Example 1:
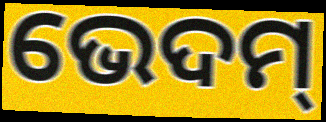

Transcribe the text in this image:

ଭେଦମ୍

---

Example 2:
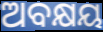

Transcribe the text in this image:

ଅବକ୍ଷୟ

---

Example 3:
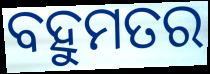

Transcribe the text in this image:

ବହୁମତର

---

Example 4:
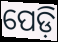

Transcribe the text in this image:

ପେଡ଼ି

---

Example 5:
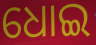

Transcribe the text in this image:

ଧୋଇ